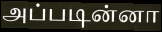
அப்படின்னா